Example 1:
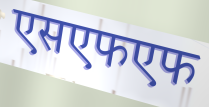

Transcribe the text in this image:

एसएफएफ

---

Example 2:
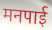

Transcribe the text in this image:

मनपाई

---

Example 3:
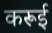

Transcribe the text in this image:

करूई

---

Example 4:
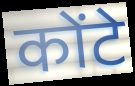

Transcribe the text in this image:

कोंटे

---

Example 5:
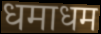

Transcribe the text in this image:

धमाधम